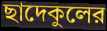
ছাদেকুলের